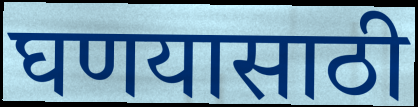
घणयासाठी